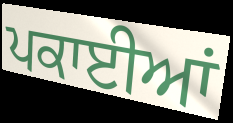
ਪਕਾਈਆਂ